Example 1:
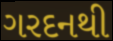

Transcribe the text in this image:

ગરદનથી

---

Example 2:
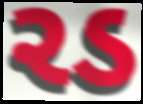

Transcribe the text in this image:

રડ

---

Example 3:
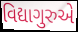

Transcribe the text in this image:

વિદ્યાગુરુએ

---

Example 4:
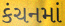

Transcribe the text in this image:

કંચનમાં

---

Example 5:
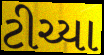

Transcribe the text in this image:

ટીચ્યા